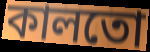
কালতো